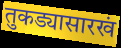
तुकड्यासारखं